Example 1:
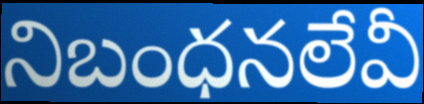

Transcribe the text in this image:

నిబంధనలేవీ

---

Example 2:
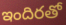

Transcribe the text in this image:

ఇందిరతో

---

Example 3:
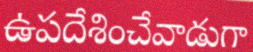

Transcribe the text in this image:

ఉపదేశించేవాడుగా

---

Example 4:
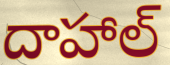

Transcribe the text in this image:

దాహాల్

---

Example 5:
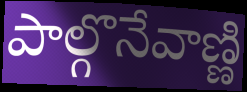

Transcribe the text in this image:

పాల్గొనేవాణ్ణి